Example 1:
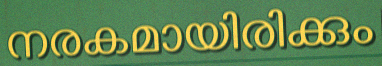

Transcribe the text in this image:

നരകമായിരിക്കും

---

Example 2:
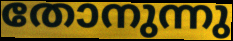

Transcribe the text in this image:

തോനുന്നു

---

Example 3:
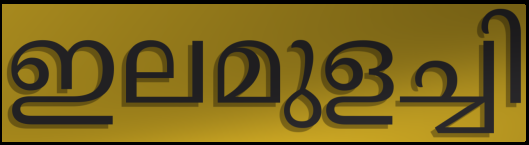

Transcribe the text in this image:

ഇലമുളച്ചി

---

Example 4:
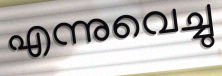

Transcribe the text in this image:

എന്നുവെച്ചു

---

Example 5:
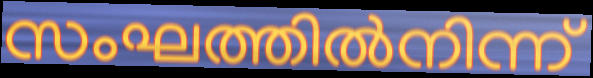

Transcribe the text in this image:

സംഘത്തിൽനിന്ന്